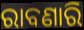
ରାବଣାରି